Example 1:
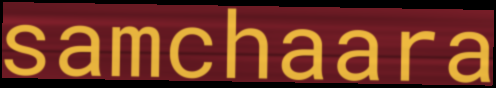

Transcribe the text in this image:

samchaara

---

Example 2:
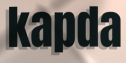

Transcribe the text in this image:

kapda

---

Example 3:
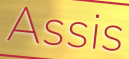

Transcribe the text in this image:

Assis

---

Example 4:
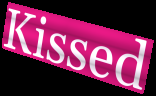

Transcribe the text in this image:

Kissed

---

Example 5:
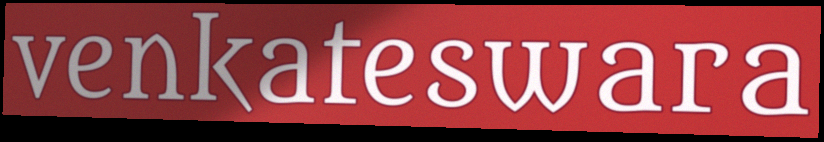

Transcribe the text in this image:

venkateswara